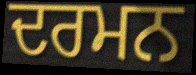
ਦਰਮਨ